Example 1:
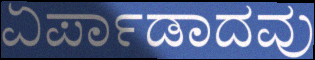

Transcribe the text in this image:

ಏರ್ಪಾಡಾದವು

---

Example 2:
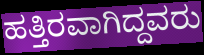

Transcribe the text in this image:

ಹತ್ತಿರವಾಗಿದ್ದವರು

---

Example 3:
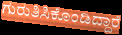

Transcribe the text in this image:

ಗುರುತಿಸಿಕೊಂಡಿದ್ದಾರೆ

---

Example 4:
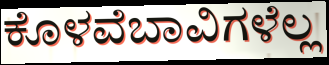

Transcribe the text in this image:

ಕೊಳವೆಬಾವಿಗಳೆಲ್ಲ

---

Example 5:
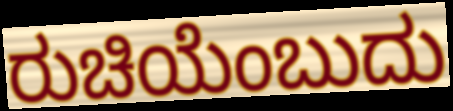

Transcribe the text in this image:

ರುಚಿಯೆಂಬುದು